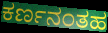
ಕರ್ಣನಂತಹ